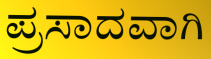
ಪ್ರಸಾದವಾಗಿ